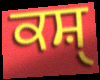
ਕਸ਼ੑ